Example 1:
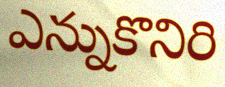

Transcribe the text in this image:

ఎన్నుకొనిరి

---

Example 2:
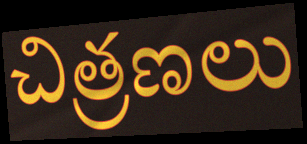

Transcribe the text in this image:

చిత్రణలు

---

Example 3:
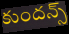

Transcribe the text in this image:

కుందన్స్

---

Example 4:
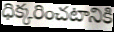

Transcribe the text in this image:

ధిక్కరించటానికి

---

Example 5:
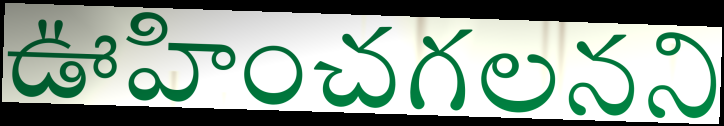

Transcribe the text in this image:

ఊహించగలనని